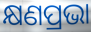
କ୍ଷଣପ୍ରଭା